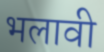
भलावी